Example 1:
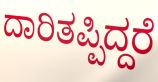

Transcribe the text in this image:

ದಾರಿತಪ್ಪಿದ್ದರೆ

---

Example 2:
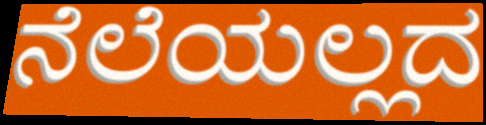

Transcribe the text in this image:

ನೆಲೆಯಲ್ಲದ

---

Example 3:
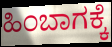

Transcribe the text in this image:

ಹಿಂಬಾಗಕ್ಕೆ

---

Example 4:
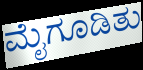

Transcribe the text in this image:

ಮೈಗೂಡಿತು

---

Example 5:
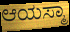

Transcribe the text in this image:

ಆಯಸ್ಮಾ